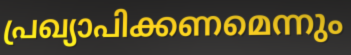
പ്രഖ്യാപിക്കണമെന്നും